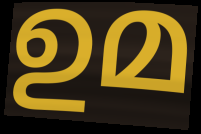
ഉമ